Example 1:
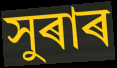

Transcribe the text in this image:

সুৰাৰ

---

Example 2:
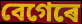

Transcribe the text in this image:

বেগেৰে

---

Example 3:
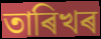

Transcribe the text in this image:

তাৰিখৰ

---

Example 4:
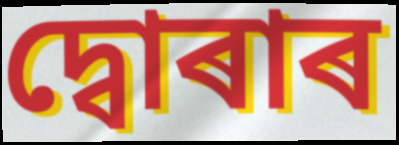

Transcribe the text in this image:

দ্বোৰাৰ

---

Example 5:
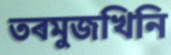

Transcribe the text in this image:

তৰমুজখিনি